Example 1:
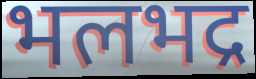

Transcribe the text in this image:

भलभद्र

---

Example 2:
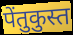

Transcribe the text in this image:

पेंतुकुस्त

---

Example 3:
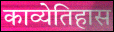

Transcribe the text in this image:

काव्येतिहास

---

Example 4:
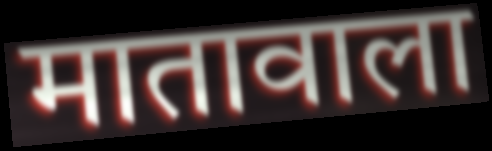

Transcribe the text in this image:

मातावाला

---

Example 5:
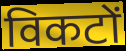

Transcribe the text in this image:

विकटों